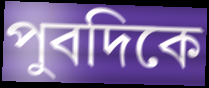
পুবদিকে